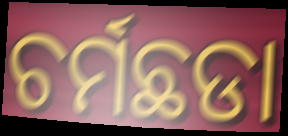
ଚର୍ମଛଡା